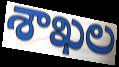
శాఖల